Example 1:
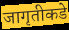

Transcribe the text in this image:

जागृतीकडे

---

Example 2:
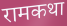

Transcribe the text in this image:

रामकथा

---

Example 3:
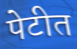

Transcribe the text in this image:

पेटीत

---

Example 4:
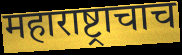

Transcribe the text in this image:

महाराष्ट्राचाच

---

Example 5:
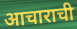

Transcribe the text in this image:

आचाराची